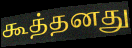
கூத்தனது